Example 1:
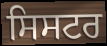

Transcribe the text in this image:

ਸਿਸਟਰ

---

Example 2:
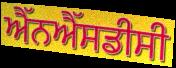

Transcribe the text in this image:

ਐੱਨਐੱਸਡੀਸੀ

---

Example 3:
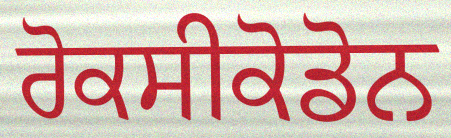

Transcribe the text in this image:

ਰੋਕਸੀਕੋਡੋਨ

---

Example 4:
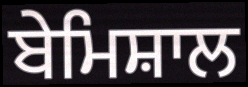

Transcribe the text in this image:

ਬੇਮਿਸ਼ਾਲ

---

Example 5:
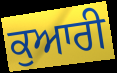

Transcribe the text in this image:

ਕੁਆਰੀ